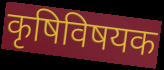
कृषिविषयक